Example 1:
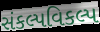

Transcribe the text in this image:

સંકલ્પવિકલ્પ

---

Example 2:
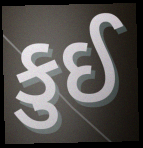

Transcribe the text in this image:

કુઈ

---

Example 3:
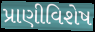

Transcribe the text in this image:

પ્રાણીવિશેષ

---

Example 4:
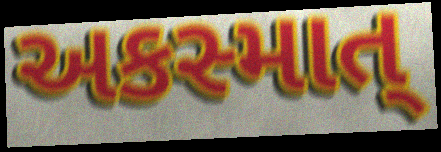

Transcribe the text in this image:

અકસ્માત્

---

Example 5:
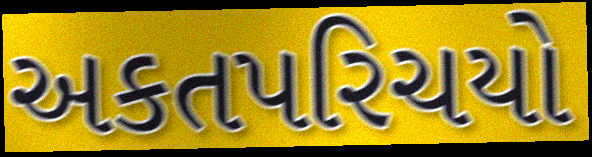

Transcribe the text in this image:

અકતપરિચયો